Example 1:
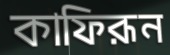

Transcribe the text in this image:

কাফিরূন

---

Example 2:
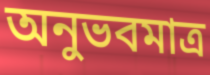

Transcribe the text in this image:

অনুভবমাত্র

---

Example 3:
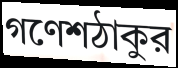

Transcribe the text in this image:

গণেশঠাকুর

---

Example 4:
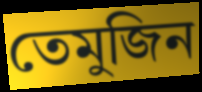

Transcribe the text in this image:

তেমুজিন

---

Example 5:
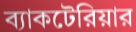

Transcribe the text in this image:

ব্যাকটেরিয়ার